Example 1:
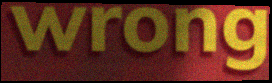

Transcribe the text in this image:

wrong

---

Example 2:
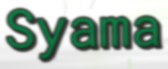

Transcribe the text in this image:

Syama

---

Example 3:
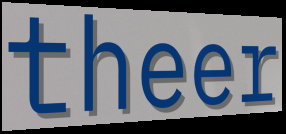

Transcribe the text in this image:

theer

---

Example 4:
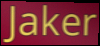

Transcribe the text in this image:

Jaker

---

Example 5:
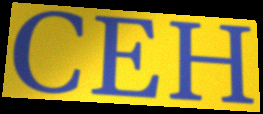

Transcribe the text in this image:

CEH